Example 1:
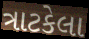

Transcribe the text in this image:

ત્રાટકેલા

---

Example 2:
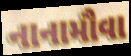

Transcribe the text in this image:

નાનામૌવા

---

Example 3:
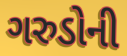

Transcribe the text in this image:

ગરુડોની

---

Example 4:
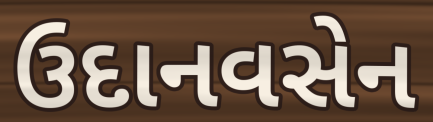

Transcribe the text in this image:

ઉદાનવસેન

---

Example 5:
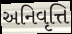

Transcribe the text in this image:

અનિવૃત્તિ